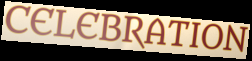
CELEBRATION